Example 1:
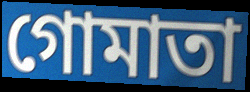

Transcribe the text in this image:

গোমাতা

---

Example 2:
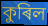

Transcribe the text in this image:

কুৰিল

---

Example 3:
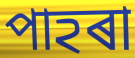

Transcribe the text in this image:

পাহৰা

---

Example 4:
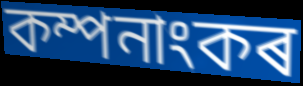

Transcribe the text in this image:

কম্পনাংকৰ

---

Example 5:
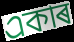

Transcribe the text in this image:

একাৰ